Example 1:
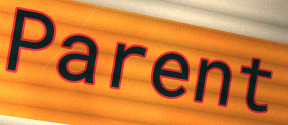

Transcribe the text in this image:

Parent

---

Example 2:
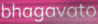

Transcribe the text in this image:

bhagavato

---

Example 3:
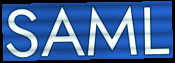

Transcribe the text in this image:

SAML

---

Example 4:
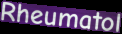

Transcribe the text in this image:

Rheumatol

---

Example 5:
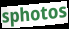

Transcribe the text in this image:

sphotos